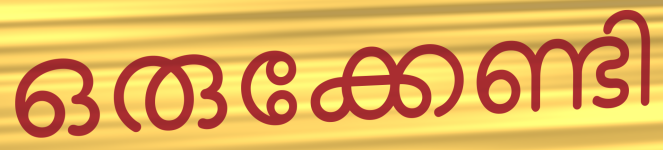
ഒരുക്കേണ്ടി